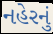
નહેરનું